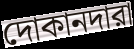
দোকানদারা